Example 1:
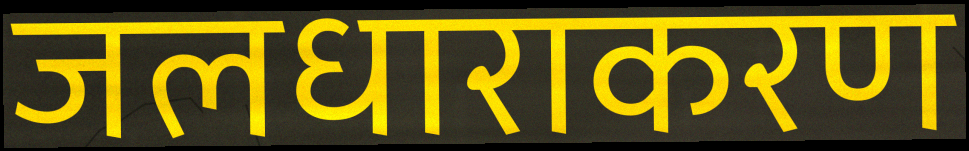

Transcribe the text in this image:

जलधाराकरण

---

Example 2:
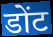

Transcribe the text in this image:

डोंट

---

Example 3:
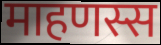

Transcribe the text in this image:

माहणस्स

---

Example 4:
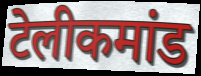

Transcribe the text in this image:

टेलीकमांड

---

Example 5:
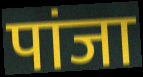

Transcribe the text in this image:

पांजा